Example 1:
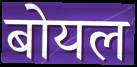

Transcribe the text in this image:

बोयल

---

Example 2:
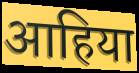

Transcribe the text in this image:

आहिया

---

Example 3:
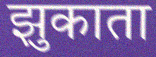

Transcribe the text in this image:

झुकाता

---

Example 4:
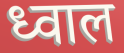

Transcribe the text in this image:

ध्वाल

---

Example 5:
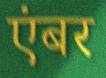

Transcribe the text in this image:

एंबर